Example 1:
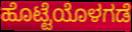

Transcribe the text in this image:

ಹೊಟ್ಟೆಯೊಳಗಡೆ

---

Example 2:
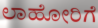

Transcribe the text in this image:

ಲಾಹೋರಿಗೆ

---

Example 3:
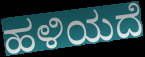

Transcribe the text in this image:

ಹಳಿಯದೆ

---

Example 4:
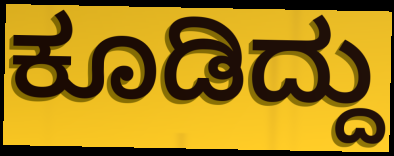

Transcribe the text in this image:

ಕೂಡಿದ್ದು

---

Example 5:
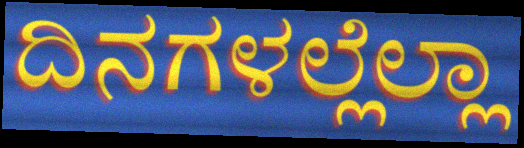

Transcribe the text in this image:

ದಿನಗಳಲ್ಲೆಲ್ಲಾ